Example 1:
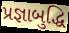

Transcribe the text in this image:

પ્રજ્ઞાબુદ્ધિ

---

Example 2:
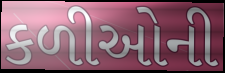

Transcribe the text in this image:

કળીઓની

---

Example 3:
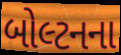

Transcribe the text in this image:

બોલ્ટનના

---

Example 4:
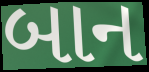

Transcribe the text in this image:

બાન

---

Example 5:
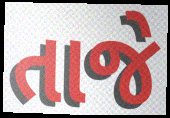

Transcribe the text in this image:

તાજે